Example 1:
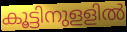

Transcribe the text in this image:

കൂട്ടിനുളളിൽ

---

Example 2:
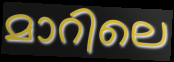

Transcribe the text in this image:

മാറിലെ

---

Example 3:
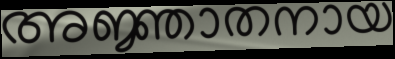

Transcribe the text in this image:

അജ്ഞാതനായ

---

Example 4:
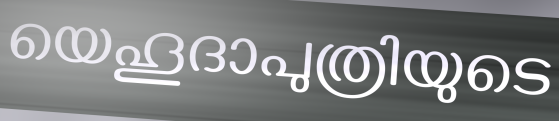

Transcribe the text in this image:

യെഹൂദാപുത്രിയുടെ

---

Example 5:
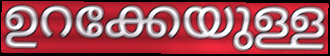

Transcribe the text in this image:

ഉറക്കേയുള്ള